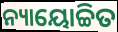
ନ୍ୟାୟୋଚ୍ଚିତ